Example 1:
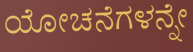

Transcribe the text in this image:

ಯೋಚನೆಗಳನ್ನೇ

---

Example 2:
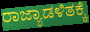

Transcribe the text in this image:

ರಾಜ್ಯಾಡಳಿತಕ್ಕೆ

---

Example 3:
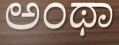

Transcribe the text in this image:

ಅಂಥಾ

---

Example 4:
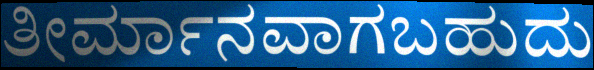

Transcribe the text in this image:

ತೀರ್ಮಾನವಾಗಬಹುದು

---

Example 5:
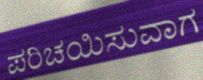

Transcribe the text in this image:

ಪರಿಚಯಿಸುವಾಗ